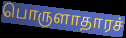
பொருளாதாரச்